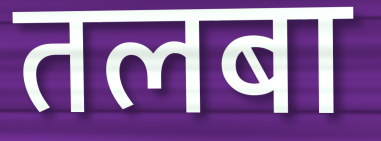
तलबा